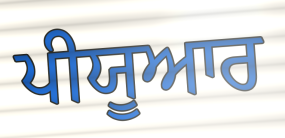
ਪੀਯੂਆਰ